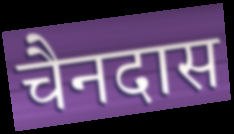
चैनदास